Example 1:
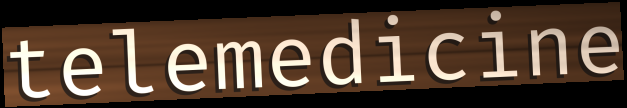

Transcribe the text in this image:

telemedicine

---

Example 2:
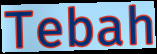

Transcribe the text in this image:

Tebah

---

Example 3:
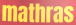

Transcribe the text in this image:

mathras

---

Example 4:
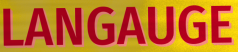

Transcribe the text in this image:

LANGAUGE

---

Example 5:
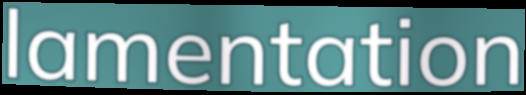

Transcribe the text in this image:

lamentation